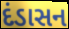
દંડાસન